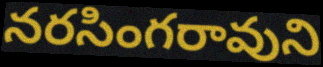
నరసింగరావుని